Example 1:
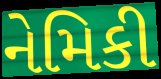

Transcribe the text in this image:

નેમિકી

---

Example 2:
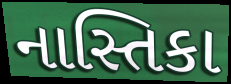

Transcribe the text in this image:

નાસ્તિકા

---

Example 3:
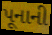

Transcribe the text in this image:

પૂનાની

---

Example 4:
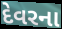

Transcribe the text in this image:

દેવરના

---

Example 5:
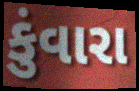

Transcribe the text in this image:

કુંવારા